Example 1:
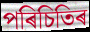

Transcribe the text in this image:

পৰিচিতিৰ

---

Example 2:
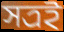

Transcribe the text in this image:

সত্ৰই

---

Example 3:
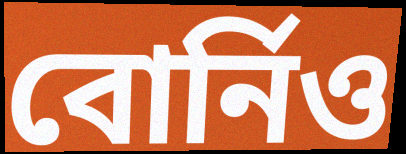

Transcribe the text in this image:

বোৰ্নিও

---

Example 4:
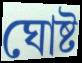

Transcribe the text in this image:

ঘোষ্ট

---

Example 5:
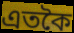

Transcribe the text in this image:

এতকৈ